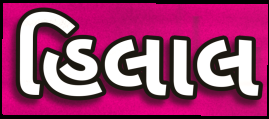
હિલાલ